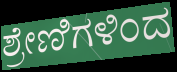
ಶ್ರೇಣಿಗಳಿಂದ